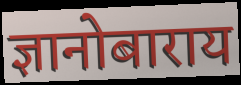
ज्ञानोबाराय